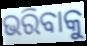
ଭରିବାକୁ